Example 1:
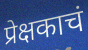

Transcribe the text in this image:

प्रेक्षकाचं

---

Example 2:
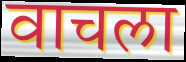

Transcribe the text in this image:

वाचला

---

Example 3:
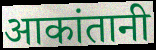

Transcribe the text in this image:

आकांतानी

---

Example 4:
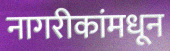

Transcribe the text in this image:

नागरीकांमधून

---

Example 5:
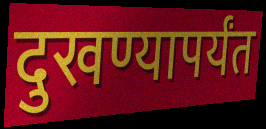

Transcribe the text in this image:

दुखण्यापर्यंत